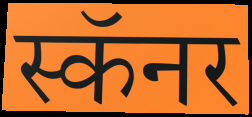
स्कॅनर